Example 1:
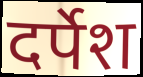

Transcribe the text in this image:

दर्पेश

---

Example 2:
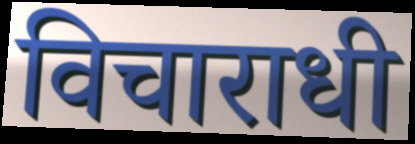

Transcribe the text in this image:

विचाराधी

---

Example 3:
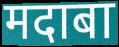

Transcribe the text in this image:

मदाबा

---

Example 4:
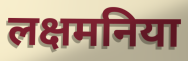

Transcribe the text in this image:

लक्षमनिया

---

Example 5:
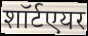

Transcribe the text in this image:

शॉर्टएयर